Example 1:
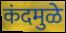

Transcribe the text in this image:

कंदमुळे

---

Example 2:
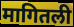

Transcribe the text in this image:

मागितली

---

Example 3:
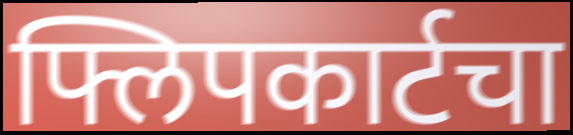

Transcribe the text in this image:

फ्लिपकार्टचा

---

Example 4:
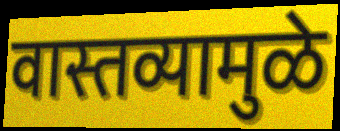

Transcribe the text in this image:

वास्तव्यामुळे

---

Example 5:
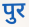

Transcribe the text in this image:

पुर